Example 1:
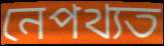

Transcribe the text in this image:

নেপথ্যত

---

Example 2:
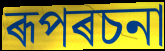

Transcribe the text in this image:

ৰূপৰচনা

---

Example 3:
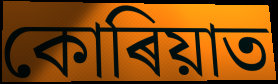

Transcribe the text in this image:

কোৰিয়াত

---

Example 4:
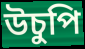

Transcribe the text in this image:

উচুপি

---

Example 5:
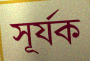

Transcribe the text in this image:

সূৰ্যক